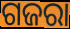
ଗଜରା